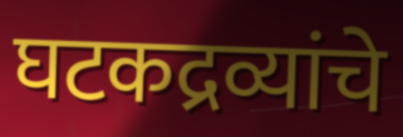
घटकद्रव्यांचे